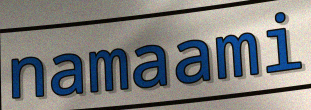
namaami